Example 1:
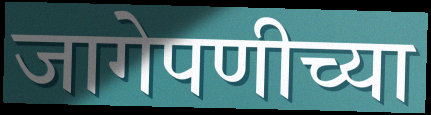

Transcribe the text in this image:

जागेपणीच्या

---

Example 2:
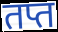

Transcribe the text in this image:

तप्त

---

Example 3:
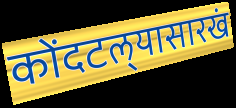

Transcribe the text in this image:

कोंदटल्यासारखं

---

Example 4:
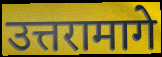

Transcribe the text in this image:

उत्तरामागे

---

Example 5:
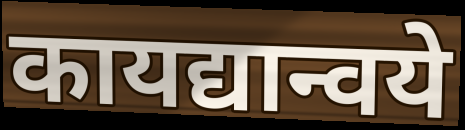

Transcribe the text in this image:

कायद्यान्वये